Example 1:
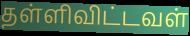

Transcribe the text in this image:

தள்ளிவிட்டவள்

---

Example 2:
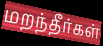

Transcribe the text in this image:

மறந்தீர்கள்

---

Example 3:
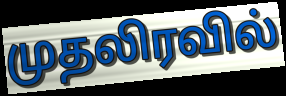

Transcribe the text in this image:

முதலிரவில்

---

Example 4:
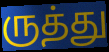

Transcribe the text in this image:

ருத்து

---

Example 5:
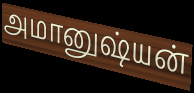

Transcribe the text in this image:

அமானுஷ்யன்